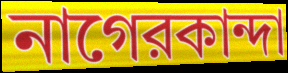
নাগেরকান্দা